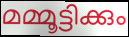
മമ്മൂട്ടിക്കും